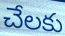
చేలకు